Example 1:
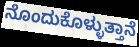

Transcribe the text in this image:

ನೊಂದುಕೊಳ್ಳುತ್ತಾನೆ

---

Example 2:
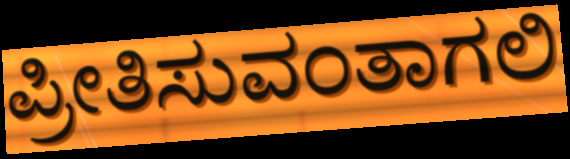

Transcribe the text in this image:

ಪ್ರೀತಿಸುವಂತಾಗಲಿ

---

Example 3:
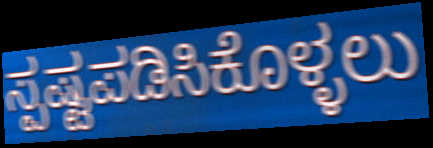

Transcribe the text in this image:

ಸ್ಪಷ್ಟಪಡಿಸಿಕೊಳ್ಳಲು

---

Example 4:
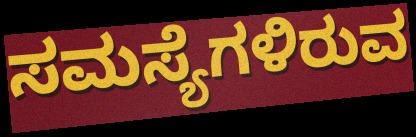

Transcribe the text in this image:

ಸಮಸ್ಯೆಗಳಿರುವ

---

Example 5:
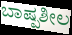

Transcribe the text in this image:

ಬಾಷ್ಪಶೀಲ